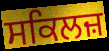
ਸਕਿਲਜ਼